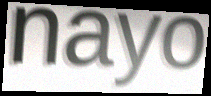
nayo